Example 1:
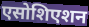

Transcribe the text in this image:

एसोशिएशन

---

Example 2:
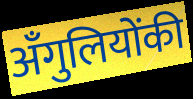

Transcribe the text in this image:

अँगुलियोंकी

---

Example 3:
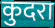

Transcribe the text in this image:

कुदरा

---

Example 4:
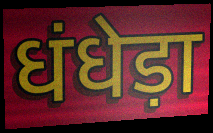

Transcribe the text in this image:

धंधेड़ा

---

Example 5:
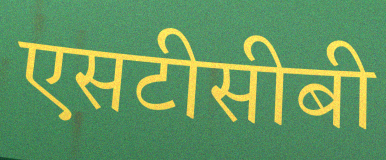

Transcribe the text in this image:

एसटीसीबी